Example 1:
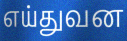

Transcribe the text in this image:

எய்துவன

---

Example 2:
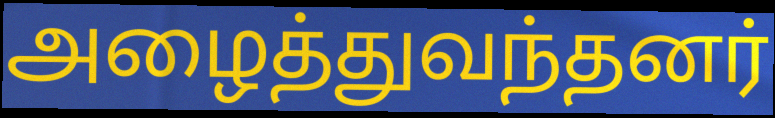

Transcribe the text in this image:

அழைத்துவந்தனர்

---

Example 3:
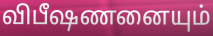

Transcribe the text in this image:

விபீஷணனையும்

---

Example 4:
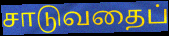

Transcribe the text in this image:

சாடுவதைப்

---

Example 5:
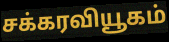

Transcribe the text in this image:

சக்கரவியூகம்